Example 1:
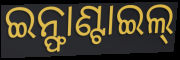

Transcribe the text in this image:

ଇନ୍ଫାଣ୍ଟାଇଲ୍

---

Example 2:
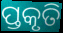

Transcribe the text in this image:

ପ୍ତକୃତି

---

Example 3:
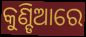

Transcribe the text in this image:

କୁଣ୍ଡିଆରେ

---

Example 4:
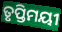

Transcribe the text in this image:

ତୃପ୍ତିମୟୀ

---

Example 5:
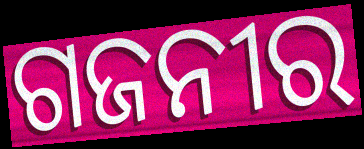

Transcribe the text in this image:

ଗଜନୀର